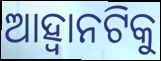
ଆହ୍ଵାନଟିକୁ